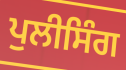
ਪੁਲੀਸਿੰਗ